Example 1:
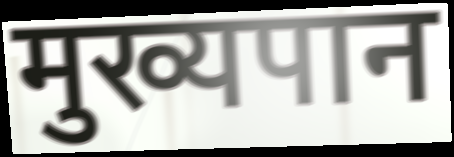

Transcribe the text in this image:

मुख्यपान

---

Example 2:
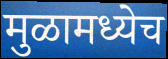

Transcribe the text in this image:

मुळामध्येच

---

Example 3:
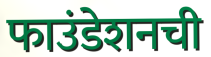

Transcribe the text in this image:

फाउंडेशनची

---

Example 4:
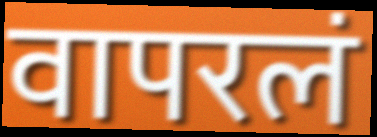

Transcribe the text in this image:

वापरलं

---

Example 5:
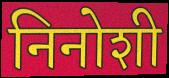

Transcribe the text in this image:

निनोशी